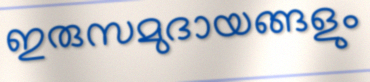
ഇരുസമുദായങ്ങളും